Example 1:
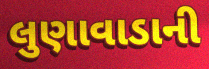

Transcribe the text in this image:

લુણાવાડાની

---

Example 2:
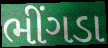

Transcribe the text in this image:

ભીંગડા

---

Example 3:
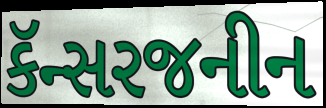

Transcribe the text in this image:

કૅન્સરજનીન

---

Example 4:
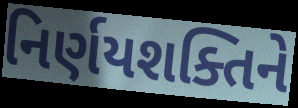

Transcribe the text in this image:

નિર્ણયશક્તિને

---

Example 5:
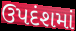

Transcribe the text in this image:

ઉપદંશમાં